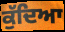
ਕੁੱਦਿਆ